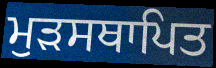
ਮੁੜਸਥਾਪਿਤ